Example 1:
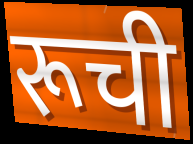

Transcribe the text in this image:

रूची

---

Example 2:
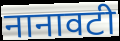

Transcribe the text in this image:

नानावटी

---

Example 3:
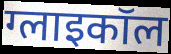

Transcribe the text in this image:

ग्लाइकॉल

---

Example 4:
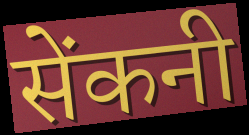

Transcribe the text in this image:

सेंकनी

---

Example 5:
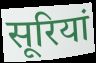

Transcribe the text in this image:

सूरियां